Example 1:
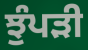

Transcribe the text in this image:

ਝੁੰਪੜੀ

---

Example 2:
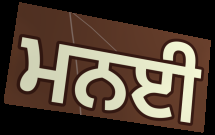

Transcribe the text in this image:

ਮਨਈ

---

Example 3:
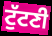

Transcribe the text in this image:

ਟੁੱਟਣੀ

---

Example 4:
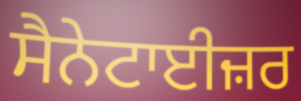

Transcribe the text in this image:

ਸੈਨੇਟਾਈਜ਼ਰ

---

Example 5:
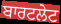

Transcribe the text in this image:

ਬਾਰਟਲੇਟ